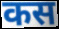
कस